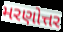
મરણોત્તર